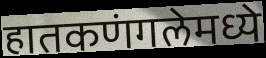
हातकणंगलेमध्ये